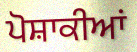
ਪੋਸ਼ਾਕੀਆਂ